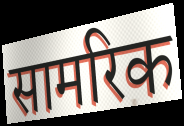
सामरिक